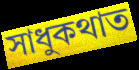
সাধুকথাত